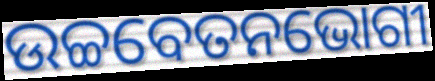
ଉଚ୍ଚବେତନଭୋଗୀ